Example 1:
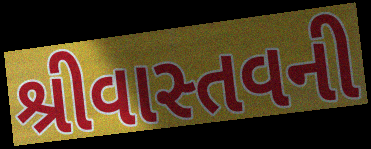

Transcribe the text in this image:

શ્રીવાસ્તવની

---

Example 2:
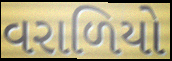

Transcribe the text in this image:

વરાળિયો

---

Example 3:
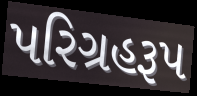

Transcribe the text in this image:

પરિગ્રહરૂપ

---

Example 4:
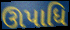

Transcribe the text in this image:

ઊપાધિ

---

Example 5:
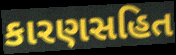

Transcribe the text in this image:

કારણસહિત